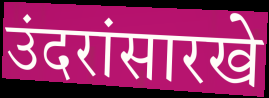
उंदरांसारखे